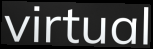
virtual